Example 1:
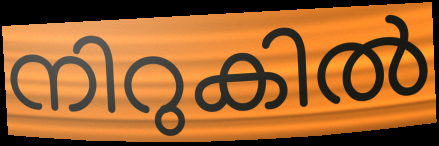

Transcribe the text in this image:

നിറുകിൽ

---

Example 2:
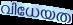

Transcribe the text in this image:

വിധേയത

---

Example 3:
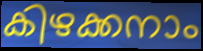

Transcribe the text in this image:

കിഴക്കനാം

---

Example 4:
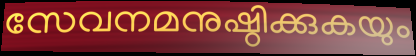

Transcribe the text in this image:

സേവനമനുഷ്ഠിക്കുകയും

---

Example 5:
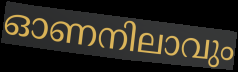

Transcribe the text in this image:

ഓണനിലാവും